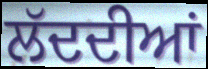
ਲੱਦਦੀਆਂ